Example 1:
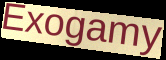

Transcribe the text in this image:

Exogamy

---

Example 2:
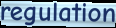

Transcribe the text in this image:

regulation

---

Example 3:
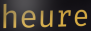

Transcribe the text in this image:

heure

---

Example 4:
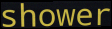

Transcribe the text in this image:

shower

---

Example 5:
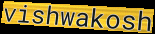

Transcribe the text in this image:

vishwakosh